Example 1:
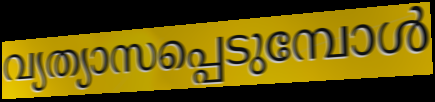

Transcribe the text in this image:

വ്യത്യാസപ്പെടുമ്പോൾ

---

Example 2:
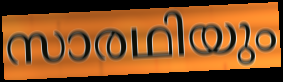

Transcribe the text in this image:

സാരഥിയും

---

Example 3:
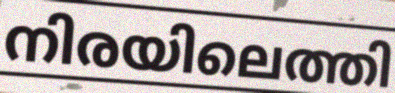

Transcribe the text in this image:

നിരയിലെത്തി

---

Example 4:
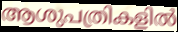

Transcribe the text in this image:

ആശുപത്രികളിൽ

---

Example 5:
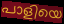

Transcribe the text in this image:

പാളിയെ